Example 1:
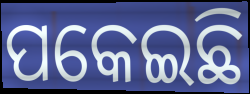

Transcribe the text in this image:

ପକେଇଛି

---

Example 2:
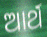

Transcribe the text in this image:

ଆର୍ଥ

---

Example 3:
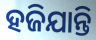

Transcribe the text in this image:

ହଜିଯାନ୍ତି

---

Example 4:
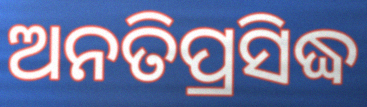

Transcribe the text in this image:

ଅନତିପ୍ରସିଦ୍ଧ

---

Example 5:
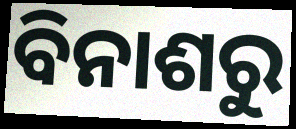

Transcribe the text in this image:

ବିନାଶରୁ